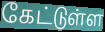
கேட்டுள்ள